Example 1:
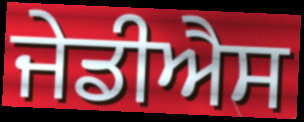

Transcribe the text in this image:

ਜੇਡੀਐਸ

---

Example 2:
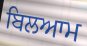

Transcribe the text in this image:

ਬਿਲਆਮ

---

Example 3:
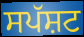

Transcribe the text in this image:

ਸਪੱਸ਼ਟ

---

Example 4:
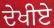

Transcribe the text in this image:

ਦੇਖੀਏ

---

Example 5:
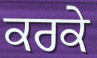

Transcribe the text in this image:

ਕਰਕੇ